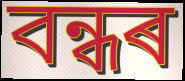
বন্ধৰ